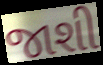
જાશી